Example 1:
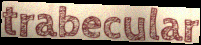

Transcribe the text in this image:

trabecular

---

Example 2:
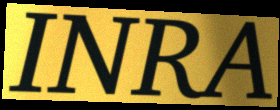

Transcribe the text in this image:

INRA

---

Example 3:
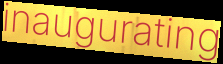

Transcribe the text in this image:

inaugurating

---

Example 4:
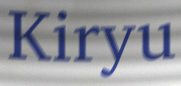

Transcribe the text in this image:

Kiryu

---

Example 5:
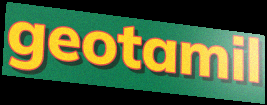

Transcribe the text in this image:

geotamil